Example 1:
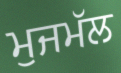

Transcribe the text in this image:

ਮੁਜਮੱਲ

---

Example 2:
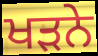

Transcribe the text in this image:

ਖੜਨੇ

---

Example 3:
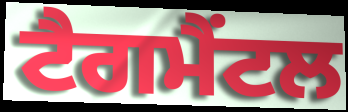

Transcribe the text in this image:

ਟੈਗਮੈਂਟਲ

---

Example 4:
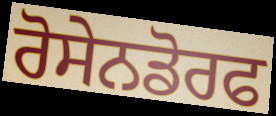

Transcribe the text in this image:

ਰੋਸੇਨਡੋਰਫ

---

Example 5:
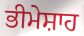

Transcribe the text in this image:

ਭੀਮੇਸ਼ਾਹ